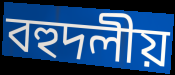
বহুদলীয়